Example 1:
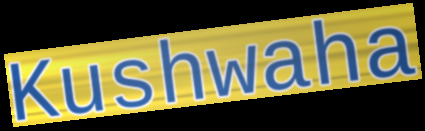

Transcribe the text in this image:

Kushwaha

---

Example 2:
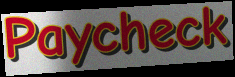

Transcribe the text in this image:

Paycheck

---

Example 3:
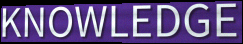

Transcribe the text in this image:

KNOWLEDGE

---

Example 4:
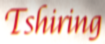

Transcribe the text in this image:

Tshiring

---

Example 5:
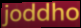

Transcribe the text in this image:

joddho